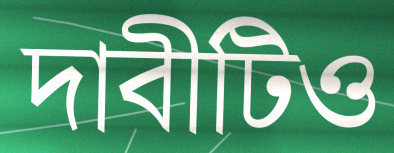
দাবীটিও